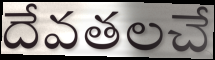
దేవతలచే